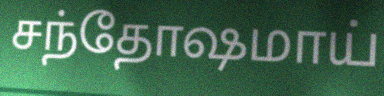
சந்தோஷமாய்